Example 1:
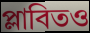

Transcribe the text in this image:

প্লাবিতও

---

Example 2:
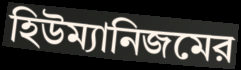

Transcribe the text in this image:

হিউম্যানিজমের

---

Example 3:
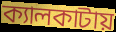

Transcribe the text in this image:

ক্যালকাটায়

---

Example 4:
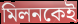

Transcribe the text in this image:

মিলনকেই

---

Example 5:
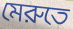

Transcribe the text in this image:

মেরুতে